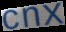
cnx